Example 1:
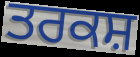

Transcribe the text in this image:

ਤਰਕਸ਼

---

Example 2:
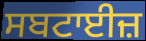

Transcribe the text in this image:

ਸਬਟਾਈਜ਼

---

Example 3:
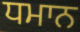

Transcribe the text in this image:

ਧਮਾਨ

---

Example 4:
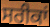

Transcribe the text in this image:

ਸਰੀਕਾਂ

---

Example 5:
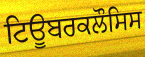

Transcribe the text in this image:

ਟਿਊਬਰਕਲੌਸਿਸ